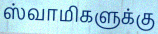
ஸ்வாமிகளுக்கு